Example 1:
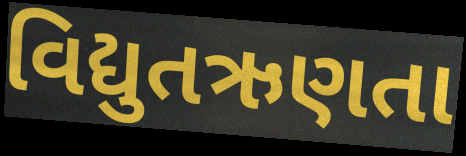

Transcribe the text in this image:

વિદ્યુતઋણતા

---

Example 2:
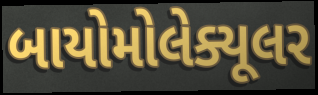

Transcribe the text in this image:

બાયોમોલેક્યૂલર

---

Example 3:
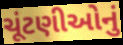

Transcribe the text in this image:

ચૂંટણીઓનું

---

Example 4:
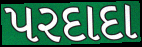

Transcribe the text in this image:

પરદાદા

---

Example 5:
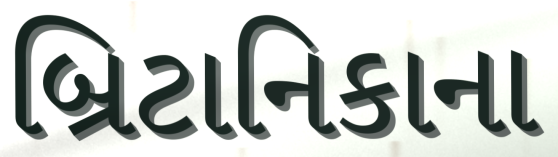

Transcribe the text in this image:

બ્રિટાનિકાના